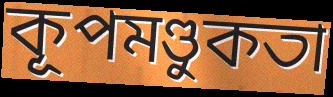
কূপমণ্ডুকতা